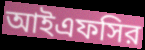
আইএফসির